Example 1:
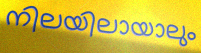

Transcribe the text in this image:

നിലയിലായാലും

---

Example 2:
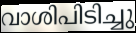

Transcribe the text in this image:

വാശിപിടിച്ചു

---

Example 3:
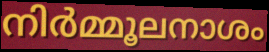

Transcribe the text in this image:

നിർമ്മൂലനാശം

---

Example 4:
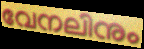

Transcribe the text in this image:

വേനലിനും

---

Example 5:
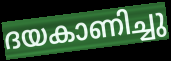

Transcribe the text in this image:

ദയകാണിച്ചു